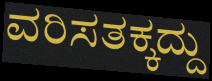
ವರಿಸತಕ್ಕದ್ದು